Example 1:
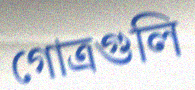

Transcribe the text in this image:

গোত্রগুলি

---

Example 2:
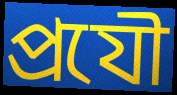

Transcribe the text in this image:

প্রযৌ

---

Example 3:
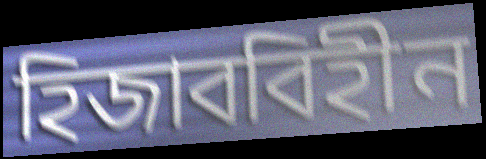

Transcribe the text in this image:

হিজাববিহীন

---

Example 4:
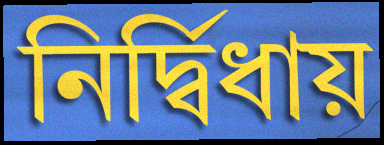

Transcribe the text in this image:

নির্দ্বিধায়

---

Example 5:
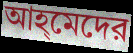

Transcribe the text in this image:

আহ্‌মেদের